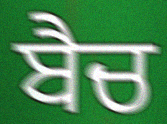
ਬੈਚ